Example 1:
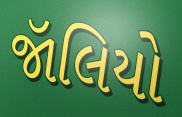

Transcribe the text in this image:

જૉલિયો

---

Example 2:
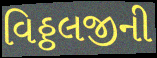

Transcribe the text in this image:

વિઠ્ઠલજીની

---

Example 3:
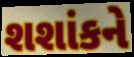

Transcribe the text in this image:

શશાંકને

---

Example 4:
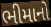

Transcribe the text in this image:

ભીમાનો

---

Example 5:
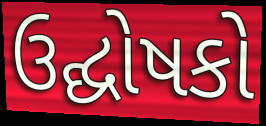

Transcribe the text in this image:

ઉદ્ઘોષકો